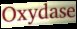
Oxydase